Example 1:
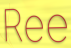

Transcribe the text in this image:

Ree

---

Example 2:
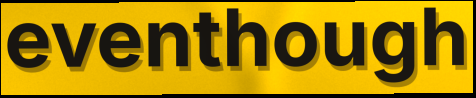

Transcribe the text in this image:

eventhough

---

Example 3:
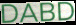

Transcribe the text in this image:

DABD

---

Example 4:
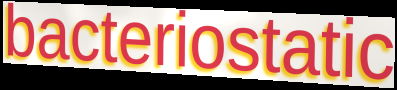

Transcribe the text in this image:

bacteriostatic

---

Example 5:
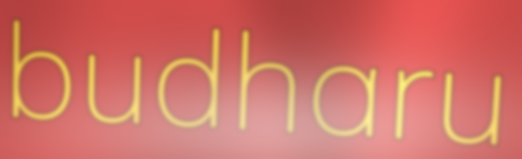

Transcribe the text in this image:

budharu